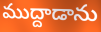
ముద్దాడాను